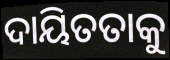
ଦାୟିତତାକୁ